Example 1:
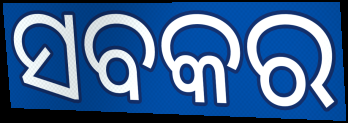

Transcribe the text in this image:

ସବକର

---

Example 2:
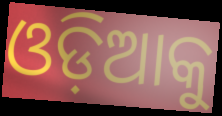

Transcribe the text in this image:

ଓଡ଼ିଆକୁ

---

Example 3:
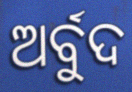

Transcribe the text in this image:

ଅର୍ବୁଦ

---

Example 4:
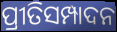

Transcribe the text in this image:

ପ୍ରୀତିସମ୍ପାଦନ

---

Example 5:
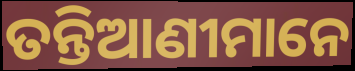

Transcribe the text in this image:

ତନ୍ତିଆଣୀମାନେ